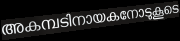
അകമ്പടിനായകനോടുകൂടെ